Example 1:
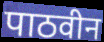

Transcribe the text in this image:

पाठवीन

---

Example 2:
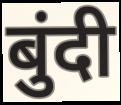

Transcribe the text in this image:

बुंदी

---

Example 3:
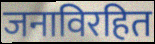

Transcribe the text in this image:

जनाविरहित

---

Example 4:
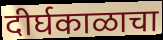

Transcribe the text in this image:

दीर्घकाळाचा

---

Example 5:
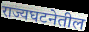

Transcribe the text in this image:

राज्यघटनेतील